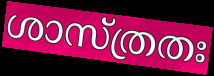
ശാസ്ത്രതഃ